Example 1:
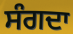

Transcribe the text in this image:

ਸੰਗਦਾ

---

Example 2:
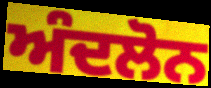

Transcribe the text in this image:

ਅੰਦਲੋਨ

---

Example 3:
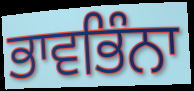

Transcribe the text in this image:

ਭਾਵਭਿੰਨਾ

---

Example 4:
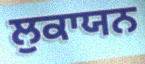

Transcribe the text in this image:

ਲੁਕਾਯਨ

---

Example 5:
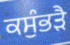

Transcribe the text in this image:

ਕਸੁੰਭੜੈ